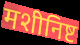
मशीनिष्ट